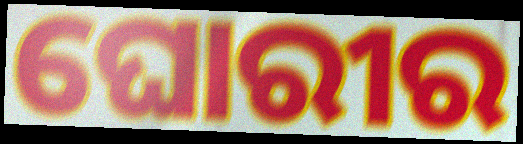
ଘୋରୀର